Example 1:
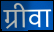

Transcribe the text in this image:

ग्रीवा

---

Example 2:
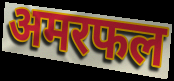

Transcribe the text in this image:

अमरफल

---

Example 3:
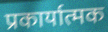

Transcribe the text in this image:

प्रकार्यात्मक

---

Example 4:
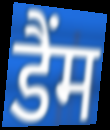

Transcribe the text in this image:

डैंम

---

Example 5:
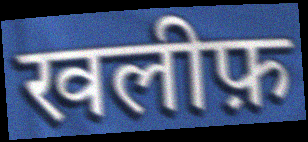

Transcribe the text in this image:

खलीफ़